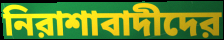
নিরাশাবাদীদের